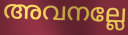
അവനല്ലേ